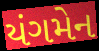
યંગમેન